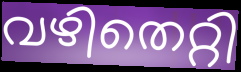
വഴിതെറ്റി